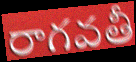
రాగవతీ